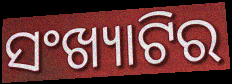
ସଂଖ୍ୟାଟିର